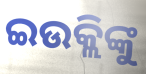
ଇଉକ୍ଲିଙ୍କୁ